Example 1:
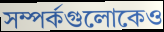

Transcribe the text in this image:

সম্পর্কগুলোকেও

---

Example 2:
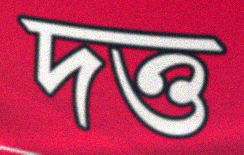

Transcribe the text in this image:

দত্ত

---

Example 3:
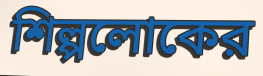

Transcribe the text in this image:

শিল্পলোকের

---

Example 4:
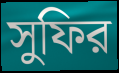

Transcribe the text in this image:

সুফির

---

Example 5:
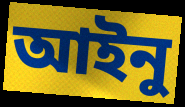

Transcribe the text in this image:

আইনু